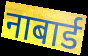
नाबार्ड